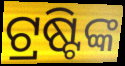
ଟ୍ରଷ୍ଟିଙ୍କ